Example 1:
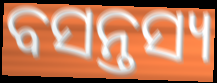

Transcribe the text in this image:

ବସନ୍ତସ୍ୟ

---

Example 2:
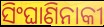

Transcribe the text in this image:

ସିଂଘାଣିନାକୀ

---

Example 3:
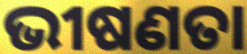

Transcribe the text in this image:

ଭୀଷଣତା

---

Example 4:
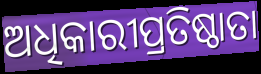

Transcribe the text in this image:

ଅଧିକାରୀପ୍ରତିଷ୍ଠାତା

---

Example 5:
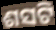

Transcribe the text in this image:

ଶସଟି